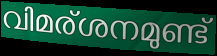
വിമര്ശനമുണ്ട്